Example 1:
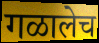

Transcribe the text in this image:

गळालेच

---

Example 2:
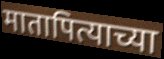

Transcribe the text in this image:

मातापित्याच्या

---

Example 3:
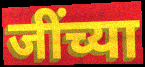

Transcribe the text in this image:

जींच्या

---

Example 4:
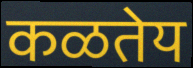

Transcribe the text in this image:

कळतेय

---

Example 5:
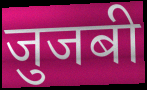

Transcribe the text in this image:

जुजबी